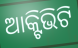
ଆକ୍ଟିଭିଟି